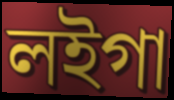
লইগা